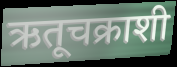
ऋतूचक्राशी